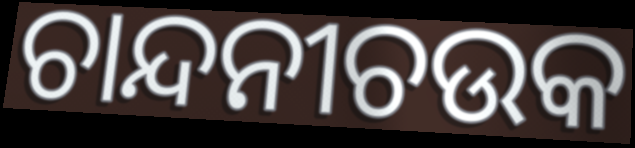
ଚାନ୍ଦନୀଚଉକ